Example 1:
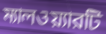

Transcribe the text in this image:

ম্যালওয়্যারটি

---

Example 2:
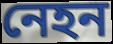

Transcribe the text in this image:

নেহন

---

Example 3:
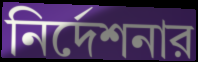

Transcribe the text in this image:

নির্দেশনার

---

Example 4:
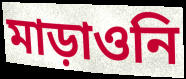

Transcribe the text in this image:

মাড়াওনি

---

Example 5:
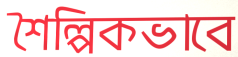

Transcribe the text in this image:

শৈল্পিকভাবে